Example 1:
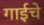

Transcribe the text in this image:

गाईचे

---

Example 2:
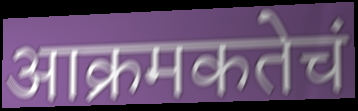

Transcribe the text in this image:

आक्रमकतेचं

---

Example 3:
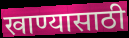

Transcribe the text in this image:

खाण्यासाठी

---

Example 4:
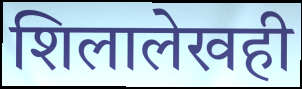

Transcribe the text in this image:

शिलालेखही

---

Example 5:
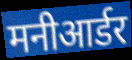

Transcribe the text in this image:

मनीआर्डर